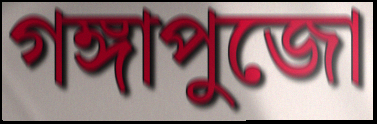
গঙ্গাপুজো